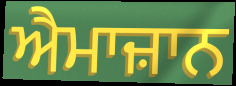
ਐਮਾਜ਼ਾਨ